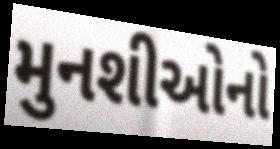
મુનશીઓનો